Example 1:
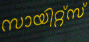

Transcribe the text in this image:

സായിറ്റ്സ്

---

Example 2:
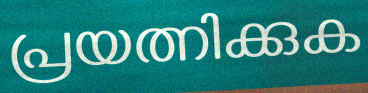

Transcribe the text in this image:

പ്രയത്നിക്കുക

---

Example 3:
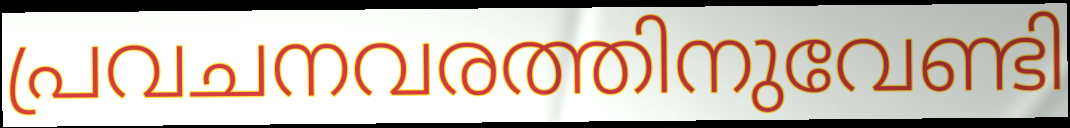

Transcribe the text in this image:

പ്രവചനവരത്തിനുവേണ്ടി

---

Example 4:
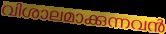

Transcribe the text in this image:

വിശാലമാക്കുന്നവൻ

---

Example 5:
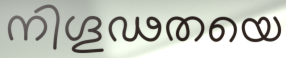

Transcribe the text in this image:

നിഗൂഢതയെ